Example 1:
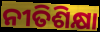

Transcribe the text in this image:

ନୀତିଶିକ୍ଷା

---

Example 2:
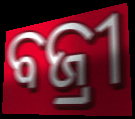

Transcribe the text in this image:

ବଜ୍ରୀ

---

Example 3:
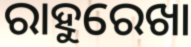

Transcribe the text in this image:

ରାହୁରେଖା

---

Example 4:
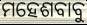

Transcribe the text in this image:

ମହେଶବାବୁ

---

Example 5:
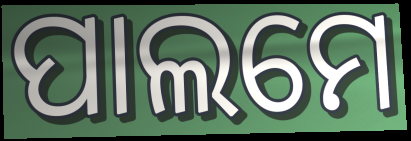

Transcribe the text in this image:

ପାଲମେ